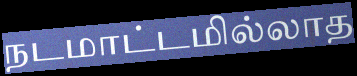
நடமாட்டமில்லாத